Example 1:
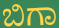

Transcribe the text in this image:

ಬಿಗಾ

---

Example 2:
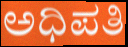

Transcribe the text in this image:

ಅಧಿಪತಿ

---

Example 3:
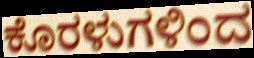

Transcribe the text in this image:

ಕೊರಳುಗಳಿಂದ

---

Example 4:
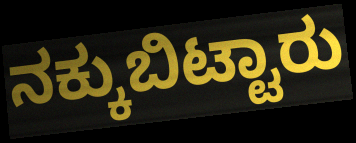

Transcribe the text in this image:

ನಕ್ಕುಬಿಟ್ಟಾರು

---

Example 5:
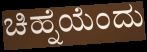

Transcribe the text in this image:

ಚಿಹ್ನೆಯೆಂದು